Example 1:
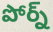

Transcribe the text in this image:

పోర్న్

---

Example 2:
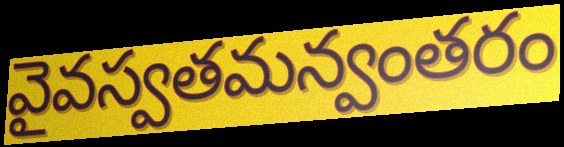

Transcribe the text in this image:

వైవస్వతమన్వంతరం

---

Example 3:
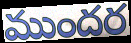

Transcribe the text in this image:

ముందర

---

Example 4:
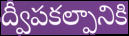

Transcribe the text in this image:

ద్వీపకల్పానికి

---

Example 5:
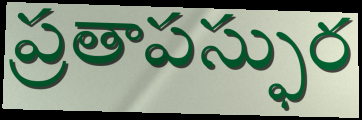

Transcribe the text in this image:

ప్రతాపస్ఫుర